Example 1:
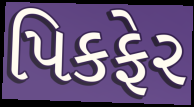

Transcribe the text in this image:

પિકફેર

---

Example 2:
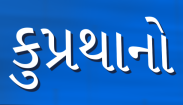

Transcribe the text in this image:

કુપ્રથાનો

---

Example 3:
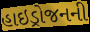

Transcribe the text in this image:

હાઇડ્રોજનની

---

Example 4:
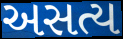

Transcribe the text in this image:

અસત્ય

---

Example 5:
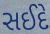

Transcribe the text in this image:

સઈદે